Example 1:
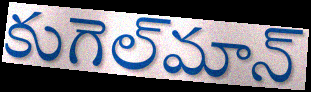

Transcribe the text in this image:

కుగెల్‌మాన్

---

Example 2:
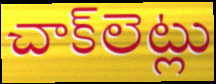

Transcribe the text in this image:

చాక్‌లెట్లు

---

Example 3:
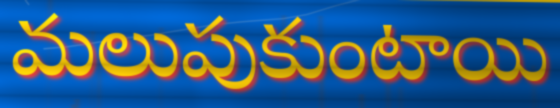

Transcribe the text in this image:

మలుపుకుంటాయి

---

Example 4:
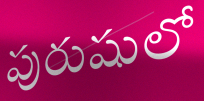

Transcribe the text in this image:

పురుషులో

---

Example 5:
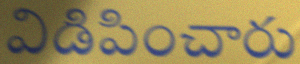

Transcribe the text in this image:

విడిపించారు